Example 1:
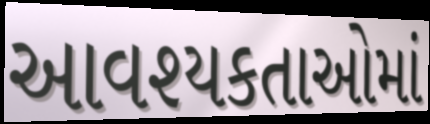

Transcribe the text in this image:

આવશ્યકતાઓમાં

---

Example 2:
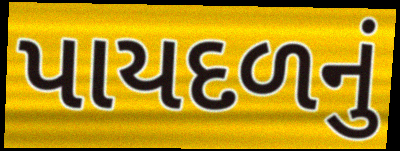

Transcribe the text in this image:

પાયદળનું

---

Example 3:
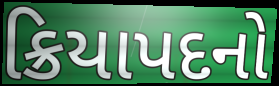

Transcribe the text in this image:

ક્રિયાપદનો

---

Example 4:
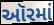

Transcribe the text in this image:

ઑરમાં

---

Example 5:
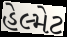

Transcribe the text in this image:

હેલ્મેટ